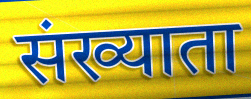
संख्याता